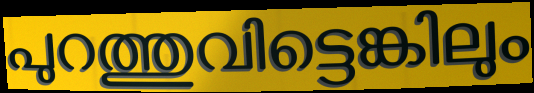
പുറത്തുവിട്ടെങ്കിലും